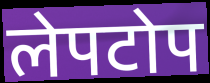
लेपटोप